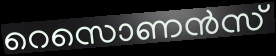
റെസൊണൻസ്